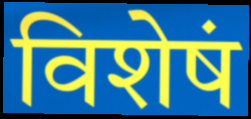
विशेषं